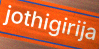
jothigirija